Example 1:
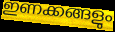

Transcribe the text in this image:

ഇണക്കങ്ങളും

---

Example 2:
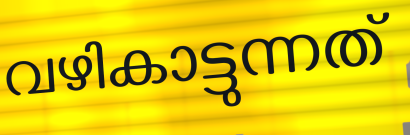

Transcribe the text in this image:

വഴികാട്ടുന്നത്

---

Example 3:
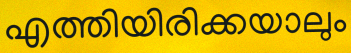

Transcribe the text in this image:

എത്തിയിരിക്കയാലും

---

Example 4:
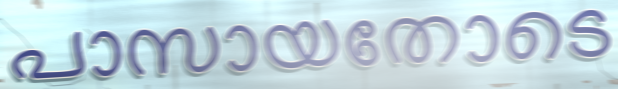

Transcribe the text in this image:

പാസായതോടെ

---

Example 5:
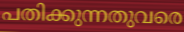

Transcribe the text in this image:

പതിക്കുന്നതുവരെ